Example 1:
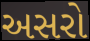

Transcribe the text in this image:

અસરો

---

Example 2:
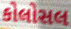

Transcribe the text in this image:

કોલોસલ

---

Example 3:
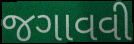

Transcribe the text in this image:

જગાવવી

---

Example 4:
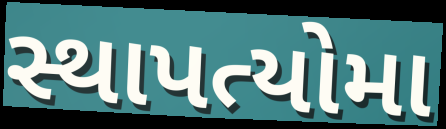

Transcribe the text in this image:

સ્થાપત્યોમા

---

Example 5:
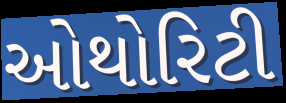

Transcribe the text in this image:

ઓથોરિટી